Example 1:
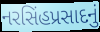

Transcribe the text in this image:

નરસિંહપ્રસાદનું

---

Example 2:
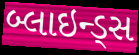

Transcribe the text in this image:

બ્લાઇન્ડ્સ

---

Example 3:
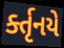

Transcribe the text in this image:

ર્ક્તૃનયે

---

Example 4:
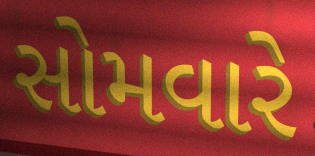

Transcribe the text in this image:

સોમવારે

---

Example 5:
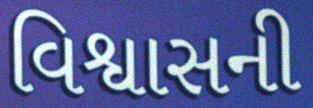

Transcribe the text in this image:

વિશ્વાસની